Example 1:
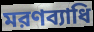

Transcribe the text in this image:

মরণব্যাধি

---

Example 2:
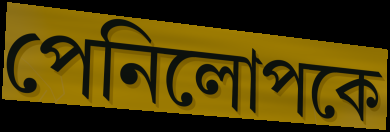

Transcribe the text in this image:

পেনিলোপকে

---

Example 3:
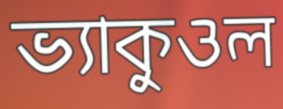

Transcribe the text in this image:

ভ্যাকুওল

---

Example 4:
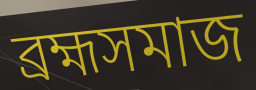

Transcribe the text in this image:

ব্রহ্মসমাজ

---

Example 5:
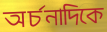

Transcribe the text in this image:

অর্চনাদিকে